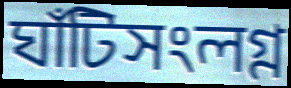
ঘাঁটিসংলগ্ন